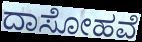
ದಾಸೋಹವೆ